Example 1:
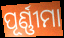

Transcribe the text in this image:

ପୂର୍ଣ୍ଣୀମା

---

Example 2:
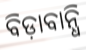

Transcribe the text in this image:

ବିଡ଼ାବାନ୍ଧି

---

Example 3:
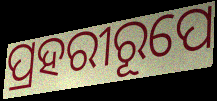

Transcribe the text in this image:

ପ୍ରହରୀରୂପେ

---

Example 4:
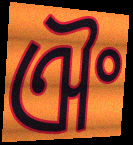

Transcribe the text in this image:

ଐଂ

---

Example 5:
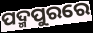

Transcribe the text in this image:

ପଦ୍ମପୁରରେ